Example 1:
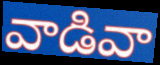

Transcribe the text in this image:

వాడివా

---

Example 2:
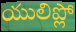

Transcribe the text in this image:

యులిప్లో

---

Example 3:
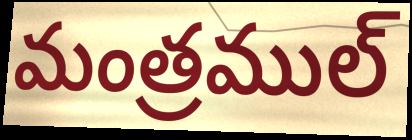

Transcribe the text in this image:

మంత్రముల్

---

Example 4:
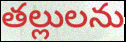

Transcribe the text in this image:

తల్లులను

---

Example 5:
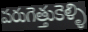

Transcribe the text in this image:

పరుగెత్తుకెళ్ళి